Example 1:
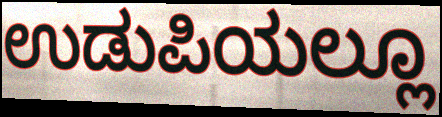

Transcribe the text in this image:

ಉಡುಪಿಯಲ್ಲೂ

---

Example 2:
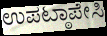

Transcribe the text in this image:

ಉಪಟ್ಠಾಪೇಸಿ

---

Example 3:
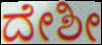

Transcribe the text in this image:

ದೇಶೀ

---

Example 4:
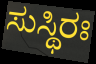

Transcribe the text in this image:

ಸುಸ್ಥಿರಃ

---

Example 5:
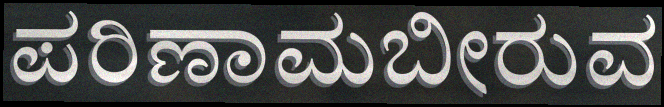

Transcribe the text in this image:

ಪರಿಣಾಮಬೀರುವ